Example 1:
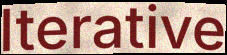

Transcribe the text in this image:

Iterative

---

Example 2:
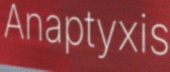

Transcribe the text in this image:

Anaptyxis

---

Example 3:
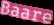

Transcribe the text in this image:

Baare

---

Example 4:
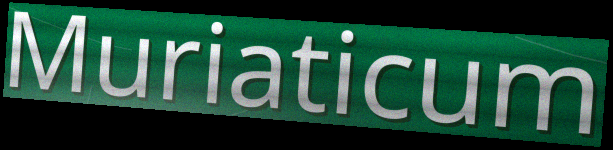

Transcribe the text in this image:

Muriaticum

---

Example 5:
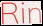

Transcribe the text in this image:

Rin